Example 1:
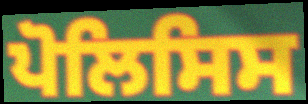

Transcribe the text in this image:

ਪੋਲਿਸਿਸ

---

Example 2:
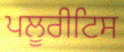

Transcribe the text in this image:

ਪਲੂਰੀਟਿਸ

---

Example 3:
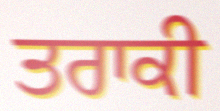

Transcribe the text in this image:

ਤਰਾਕੀ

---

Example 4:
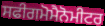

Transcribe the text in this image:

ਸਫੀਗਮੋਮੈਨੋਮੀਟਰ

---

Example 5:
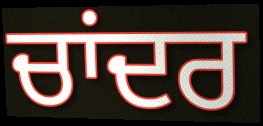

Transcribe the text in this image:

ਚਾਂਦਰ